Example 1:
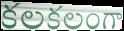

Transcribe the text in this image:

కలకలంగా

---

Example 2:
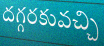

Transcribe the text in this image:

దగ్గరకువచ్చి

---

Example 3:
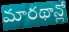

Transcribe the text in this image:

మారథాన్లో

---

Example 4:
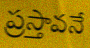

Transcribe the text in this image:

ప్రస్తావనే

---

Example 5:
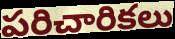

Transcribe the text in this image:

పరిచారికలు